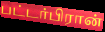
பட்டர்பிரான்